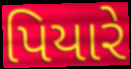
પિયારે